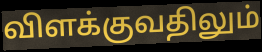
விளக்குவதிலும்